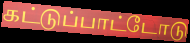
கட்டுப்பாட்டோடு